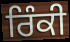
ਰਿੰਕੀ